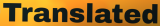
Translated